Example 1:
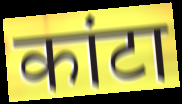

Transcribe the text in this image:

कांटा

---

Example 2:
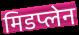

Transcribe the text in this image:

मिडप्लेन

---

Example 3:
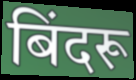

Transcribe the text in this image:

बिंदरू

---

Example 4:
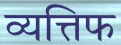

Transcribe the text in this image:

व्यत्तिफ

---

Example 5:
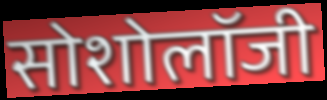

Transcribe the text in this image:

सोशोलॉजी